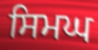
ਸਿਮਘ